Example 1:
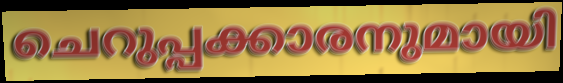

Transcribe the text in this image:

ചെറുപ്പക്കാരനുമായി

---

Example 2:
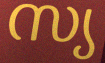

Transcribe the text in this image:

സ്യ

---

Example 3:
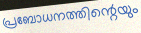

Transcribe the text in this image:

പ്രബോധനത്തിന്റെയും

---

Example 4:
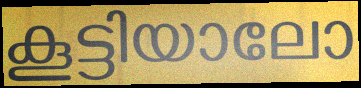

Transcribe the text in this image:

കൂട്ടിയാലോ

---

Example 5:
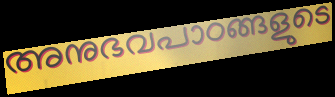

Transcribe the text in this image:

അനുഭവപാഠങ്ങളുടെ